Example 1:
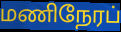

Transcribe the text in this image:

மணிநேரப்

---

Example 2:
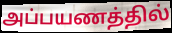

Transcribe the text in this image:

அப்பயணத்தில்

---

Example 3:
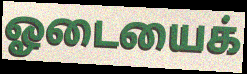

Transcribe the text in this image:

ஓடையைக்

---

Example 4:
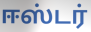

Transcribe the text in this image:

ஈஸ்டர்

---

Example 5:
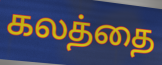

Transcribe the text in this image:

கலத்தை